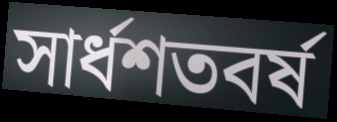
সার্ধশতবর্ষ